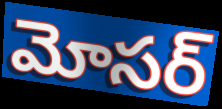
మోసర్